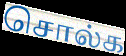
சொல்க